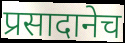
प्रसादानेच